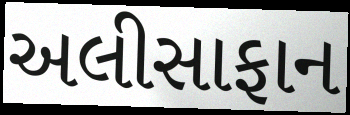
અલીસાફાન